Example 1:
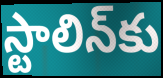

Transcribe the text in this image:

స్టాలిన్‌కు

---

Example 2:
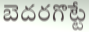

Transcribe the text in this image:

బెదరగొట్టే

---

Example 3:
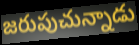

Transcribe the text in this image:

జరుపుచున్నాడు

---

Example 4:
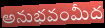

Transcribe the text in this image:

అనుభవంమీద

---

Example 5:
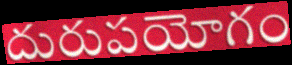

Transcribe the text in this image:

దురుపయోగం